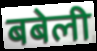
बबेली